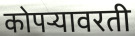
कोपऱ्यावरती